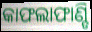
କାଫଲାଫାଣ୍ଡି